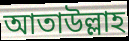
আতাউল্লাহ